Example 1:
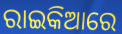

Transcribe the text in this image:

ରାଇକିଆରେ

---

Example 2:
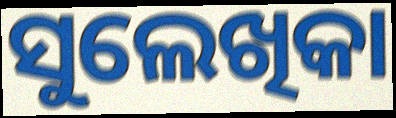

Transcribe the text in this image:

ସୁଲେଖିକା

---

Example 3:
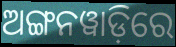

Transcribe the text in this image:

ଅଙ୍ଗନୱାଡ଼ିରେ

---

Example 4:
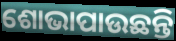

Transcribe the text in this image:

ଶୋଭାପାଉଛନ୍ତି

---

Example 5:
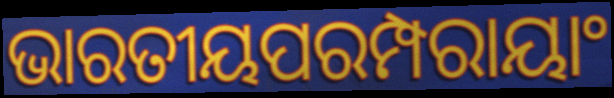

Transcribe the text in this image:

ଭାରତୀୟପରମ୍ପରାୟାଂ